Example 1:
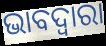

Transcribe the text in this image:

ଭାବଦ୍ଵାରା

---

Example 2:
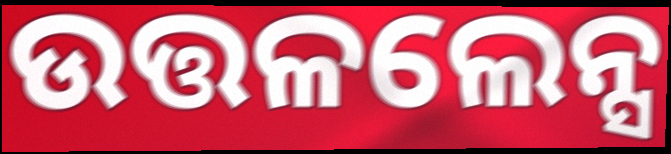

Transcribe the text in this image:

ଉତ୍ତଳଲେନ୍ସ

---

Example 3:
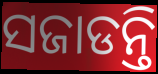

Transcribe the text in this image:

ସଜାଡନ୍ତି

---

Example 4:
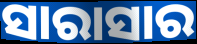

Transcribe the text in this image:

ସାରାସାର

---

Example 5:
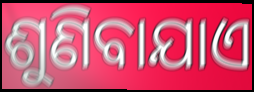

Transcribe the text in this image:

ଶୁଣିବାଯାଏ